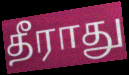
தீராது